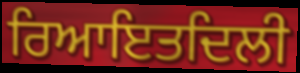
ਰਿਆਇਤਦਿਲੀ